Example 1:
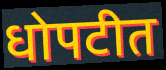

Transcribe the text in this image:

धोपटीत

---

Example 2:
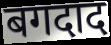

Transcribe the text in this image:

बगदाद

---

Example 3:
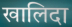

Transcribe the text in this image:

खालिदा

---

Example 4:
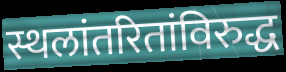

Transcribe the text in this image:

स्थलांतरितांविरुद्ध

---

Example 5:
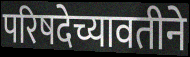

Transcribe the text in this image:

परिषदेच्यावतीने